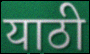
याठी